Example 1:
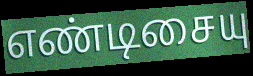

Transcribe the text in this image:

எண்டிசையு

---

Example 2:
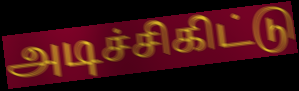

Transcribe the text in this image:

அடிச்சிகிட்டு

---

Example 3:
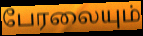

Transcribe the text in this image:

பேரலையும்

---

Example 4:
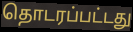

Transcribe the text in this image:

தொடரப்பட்டது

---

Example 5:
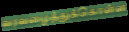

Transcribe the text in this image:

வரவழைத்துக்கொள்ள